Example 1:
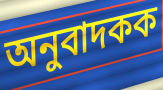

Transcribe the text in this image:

অনুবাদকক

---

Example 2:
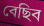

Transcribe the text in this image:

বেছিব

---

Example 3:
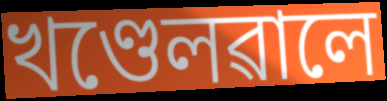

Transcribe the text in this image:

খণ্ডেলৱালে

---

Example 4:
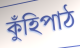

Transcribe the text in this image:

কুঁহিপাঠ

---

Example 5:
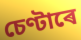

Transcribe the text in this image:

চেণ্টাৰে